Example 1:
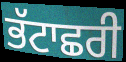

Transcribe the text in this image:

ਭੱਟਾਛਰੀ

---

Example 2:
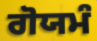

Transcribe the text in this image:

ਗੋਯਮੰ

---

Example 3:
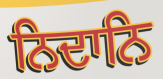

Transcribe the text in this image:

ਨਿਦਾਨਿ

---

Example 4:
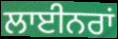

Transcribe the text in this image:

ਲਾਈਨਰਾਂ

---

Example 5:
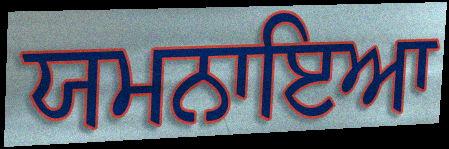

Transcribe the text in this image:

ਯਮਨਾਇਆ